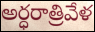
అర్ధరాత్రివేళ